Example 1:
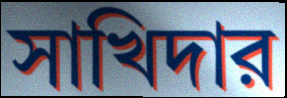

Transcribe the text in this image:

সাখিদার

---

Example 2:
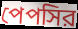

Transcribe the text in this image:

পেপসির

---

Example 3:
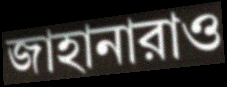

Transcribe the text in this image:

জাহানারাও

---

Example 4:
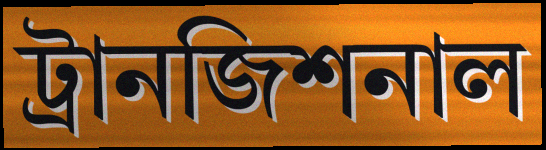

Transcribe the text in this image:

ট্রানজিশনাল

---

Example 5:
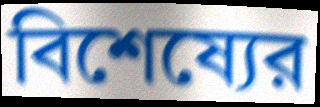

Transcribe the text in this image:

বিশেষ্যের